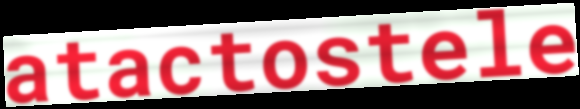
atactostele